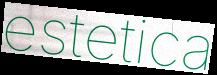
estetica